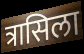
त्रासिला